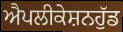
ਐਪਲੀਕੇਸ਼ਨਹੁੱਡ